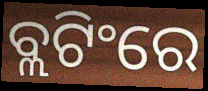
ବ୍ଲଟିଂରେ